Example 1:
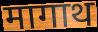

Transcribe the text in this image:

मागाथ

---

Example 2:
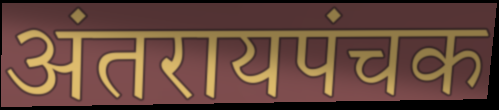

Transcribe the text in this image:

अंतरायपंचक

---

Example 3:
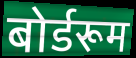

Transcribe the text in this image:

बोर्डरूम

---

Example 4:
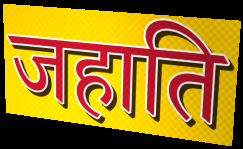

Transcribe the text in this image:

जहाति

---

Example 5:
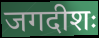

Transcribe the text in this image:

जगदीशः